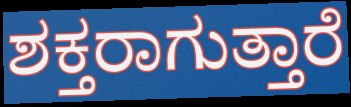
ಶಕ್ತರಾಗುತ್ತಾರೆ